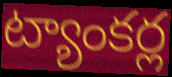
ట్యాంకర్ల